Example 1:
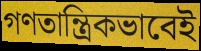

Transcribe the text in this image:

গণতান্ত্রিকভাবেই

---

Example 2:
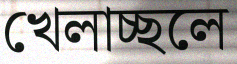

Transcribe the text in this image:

খেলাচ্ছলে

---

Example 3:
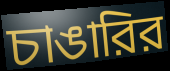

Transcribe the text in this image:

চাঙারির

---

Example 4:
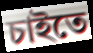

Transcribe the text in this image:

চাইতে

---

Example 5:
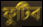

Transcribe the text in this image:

ফুটিব